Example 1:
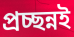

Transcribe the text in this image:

প্রচ্ছন্নই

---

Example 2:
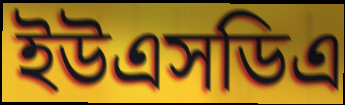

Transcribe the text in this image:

ইউএসডিএ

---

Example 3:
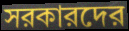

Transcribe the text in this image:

সরকারদের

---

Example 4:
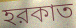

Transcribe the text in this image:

হরকাত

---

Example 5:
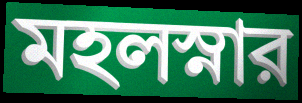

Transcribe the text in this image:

মহলস্নার